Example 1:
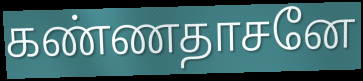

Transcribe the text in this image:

கண்ணதாசனே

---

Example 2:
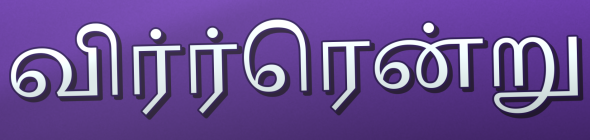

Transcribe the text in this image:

விர்ர்ரென்று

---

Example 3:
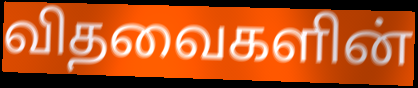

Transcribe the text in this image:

விதவைகளின்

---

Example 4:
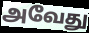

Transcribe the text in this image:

அவேது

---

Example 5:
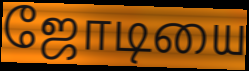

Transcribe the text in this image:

ஜோடியை